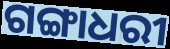
ଗଙ୍ଗାଧରୀ